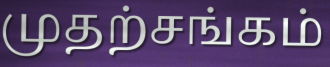
முதற்சங்கம்